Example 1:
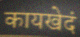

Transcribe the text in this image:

कायखेदं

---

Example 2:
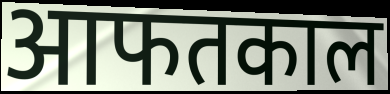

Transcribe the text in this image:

आफतकाल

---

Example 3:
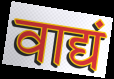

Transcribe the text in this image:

वाद्यं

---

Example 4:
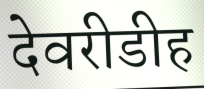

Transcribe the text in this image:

देवरीडीह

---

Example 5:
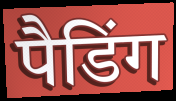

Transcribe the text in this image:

पैडिंग